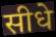
सीधे